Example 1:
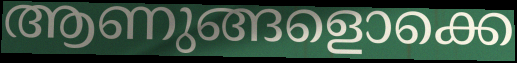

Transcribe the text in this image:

ആണുങ്ങളൊക്കെ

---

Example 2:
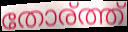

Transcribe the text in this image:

തോര്ത്ത്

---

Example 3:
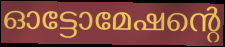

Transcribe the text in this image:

ഓട്ടോമേഷന്റെ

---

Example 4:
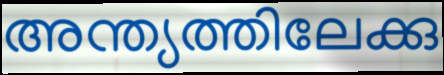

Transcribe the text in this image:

അന്ത്യത്തിലേക്കു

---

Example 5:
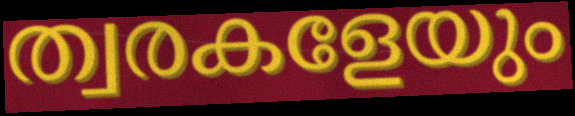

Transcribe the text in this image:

ത്വരകളേയും